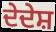
ਦੇਦੇਸ਼